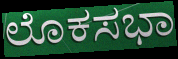
ಲೊಕಸಭಾ